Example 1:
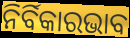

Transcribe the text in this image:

ନିର୍ବିକାରଭାବ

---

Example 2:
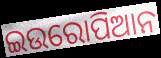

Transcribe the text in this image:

ଇଉରୋପିଆନ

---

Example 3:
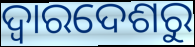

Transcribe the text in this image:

ଦ୍ଵାରଦେଶରୁ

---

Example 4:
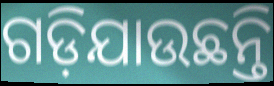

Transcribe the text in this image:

ଗଡ଼ିଯାଉଛନ୍ତି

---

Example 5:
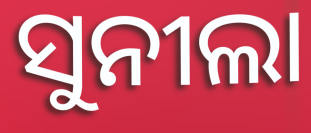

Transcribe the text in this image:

ସୁନୀଲା